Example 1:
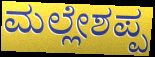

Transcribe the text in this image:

ಮಲ್ಲೇಶಪ್ಪ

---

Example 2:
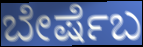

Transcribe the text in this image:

ಬೇರ್ಷೆಬ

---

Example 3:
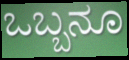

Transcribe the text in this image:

ಒಬ್ಬನೂ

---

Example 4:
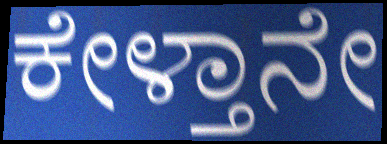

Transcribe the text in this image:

ಕೇಳ್ತಾನೇ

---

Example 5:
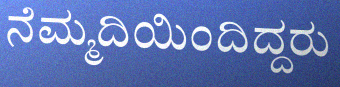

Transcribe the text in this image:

ನೆಮ್ಮದಿಯಿಂದಿದ್ದರು